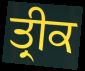
ਤ੍ਰੀਕ